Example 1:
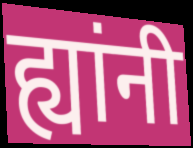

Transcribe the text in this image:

ह्यांनी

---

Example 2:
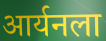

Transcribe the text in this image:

आर्यनला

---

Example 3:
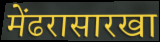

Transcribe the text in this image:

मेंढरासारखा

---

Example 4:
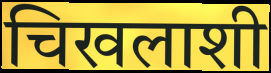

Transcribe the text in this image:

चिखलाशी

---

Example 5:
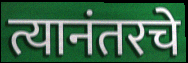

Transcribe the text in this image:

त्यानंतरचे